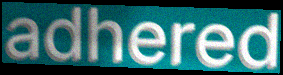
adhered